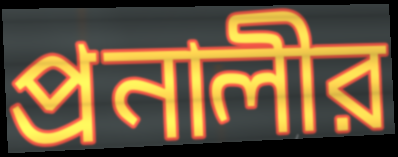
প্রনালীর